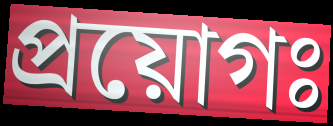
প্রয়োগঃ